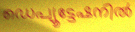
ഡെപ്യൂട്ടേഷനിൽ